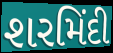
શરમિંદી